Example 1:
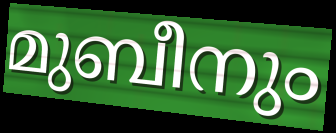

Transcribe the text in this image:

മുബീനും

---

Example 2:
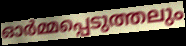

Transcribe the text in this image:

ഓർമ്മപ്പെടുത്തലും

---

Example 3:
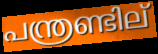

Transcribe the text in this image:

പന്ത്രണ്ടില്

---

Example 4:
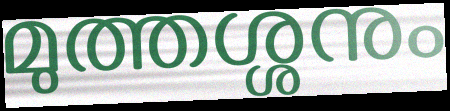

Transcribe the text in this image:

മുത്തശ്ശനും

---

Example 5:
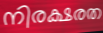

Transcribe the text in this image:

നിരക്ഷരത